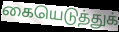
கையெடுத்துக்